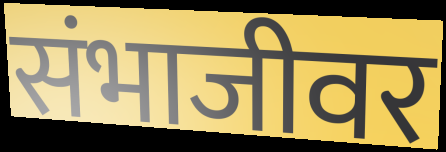
संभाजीवर